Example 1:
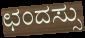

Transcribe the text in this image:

ಛಂದಸ್ಸು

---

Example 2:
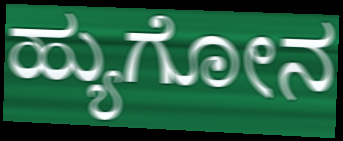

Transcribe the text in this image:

ಹ್ಯುಗೋನ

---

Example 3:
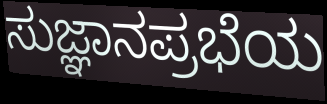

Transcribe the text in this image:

ಸುಜ್ಞಾನಪ್ರಭೆಯ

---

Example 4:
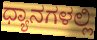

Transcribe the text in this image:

ಧ್ಯಾನಗಳಲ್ಲಿ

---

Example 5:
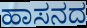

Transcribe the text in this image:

ಹಾಸನದ